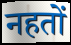
नहतों